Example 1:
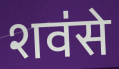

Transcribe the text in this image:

शव॑से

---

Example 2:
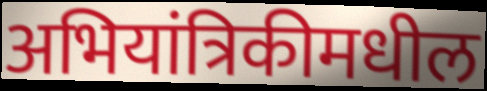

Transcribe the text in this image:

अभियांत्रिकीमधील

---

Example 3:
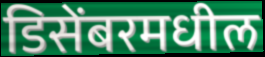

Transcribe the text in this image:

डिसेंबरमधील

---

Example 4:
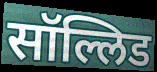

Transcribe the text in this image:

सॉल्लिड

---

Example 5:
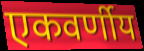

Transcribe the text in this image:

एकवर्णीय